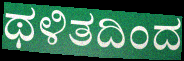
ಥಳಿತದಿಂದ